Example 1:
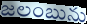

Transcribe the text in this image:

జలంబును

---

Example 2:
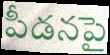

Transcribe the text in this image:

పీడనపై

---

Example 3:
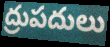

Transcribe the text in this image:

ద్రుపదులు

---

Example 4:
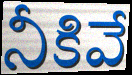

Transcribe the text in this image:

నీకివే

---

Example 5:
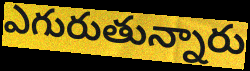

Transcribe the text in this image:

ఎగురుతున్నారు